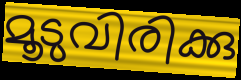
മൂടുവിരിക്കു